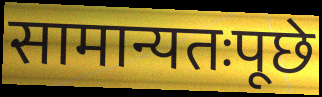
सामान्यतःपूछे